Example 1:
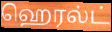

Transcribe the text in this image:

ஹெரல்ட்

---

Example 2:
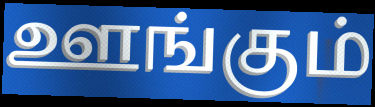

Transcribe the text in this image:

ஊங்கும்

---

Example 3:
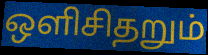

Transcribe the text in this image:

ஒளிசிதறும்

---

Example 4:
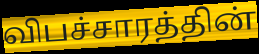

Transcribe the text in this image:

விபச்சாரத்தின்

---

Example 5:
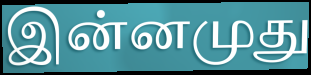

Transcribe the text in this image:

இன்னமுது